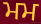
ਮਮ